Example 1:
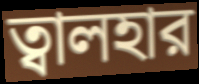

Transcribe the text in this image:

ত্বালহার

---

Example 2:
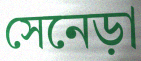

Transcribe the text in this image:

সেনেড়া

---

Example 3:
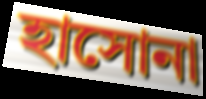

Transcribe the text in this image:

হাসোনা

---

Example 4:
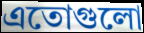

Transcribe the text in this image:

এতোগুলো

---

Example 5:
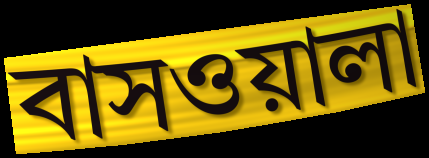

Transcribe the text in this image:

বাসওয়ালা